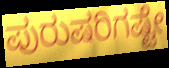
ಪುರುಷರಿಗಷ್ಟೇ